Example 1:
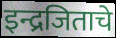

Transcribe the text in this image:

इन्द्रजिताचे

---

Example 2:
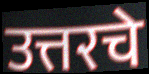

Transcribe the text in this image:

उत्तरचे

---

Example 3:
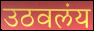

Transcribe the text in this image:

उठवलंय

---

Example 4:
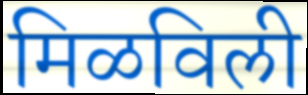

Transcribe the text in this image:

मिळविली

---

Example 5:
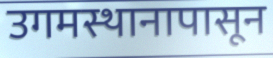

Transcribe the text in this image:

उगमस्थानापासून